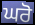
ਘਰੋ